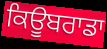
ਕਿਊਬਰਾਡਾ